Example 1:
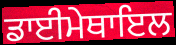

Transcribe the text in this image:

ਡਾਈਮੇਥਾਇਲ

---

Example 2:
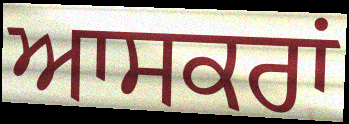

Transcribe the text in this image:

ਆਸਕਰਾਂ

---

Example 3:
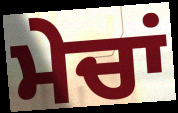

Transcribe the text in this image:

ਮੇਚਾਂ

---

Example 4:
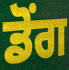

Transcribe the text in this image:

ਡੋਂਗ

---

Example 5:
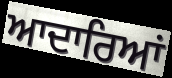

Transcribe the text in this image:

ਆਦਾਰਿਆਂ